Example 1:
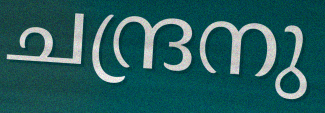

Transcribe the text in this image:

ചന്ദ്രനു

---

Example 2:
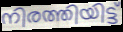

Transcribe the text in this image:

നിരത്തിയിട്ട്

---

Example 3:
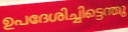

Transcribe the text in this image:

ഉപദേശിച്ചിട്ടെന്തു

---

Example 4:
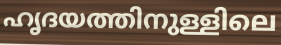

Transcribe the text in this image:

ഹൃദയത്തിനുള്ളിലെ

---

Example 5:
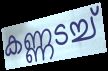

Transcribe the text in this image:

കണ്ണടച്ച്